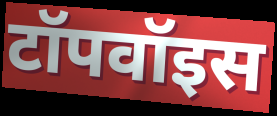
टॉपवॉइस